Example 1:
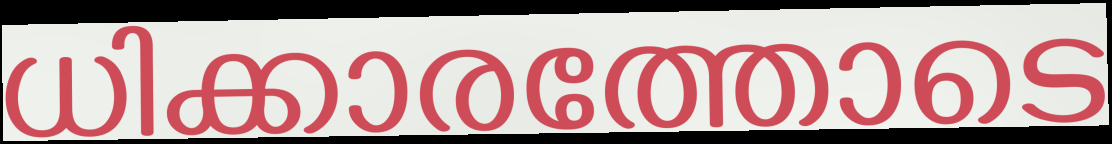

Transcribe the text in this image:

ധിക്കാരത്തോടെ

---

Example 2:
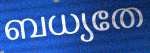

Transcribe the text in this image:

ബധ്യതേ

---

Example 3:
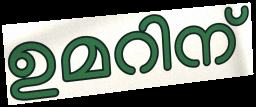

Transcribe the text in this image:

ഉമറിന്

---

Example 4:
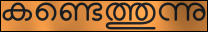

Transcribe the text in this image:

കണ്ടെത്തുന്നു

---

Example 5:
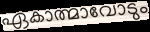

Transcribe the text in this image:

ഏകാത്മാവോടും